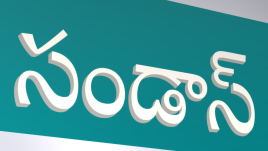
సండాస్